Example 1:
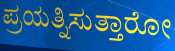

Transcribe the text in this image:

ಪ್ರಯತ್ನಿಸುತ್ತಾರೋ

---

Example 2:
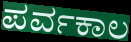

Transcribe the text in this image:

ಪರ್ವಕಾಲ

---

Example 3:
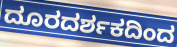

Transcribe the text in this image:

ದೂರದರ್ಶಕದಿಂದ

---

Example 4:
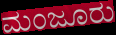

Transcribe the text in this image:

ಮಂಜೂರು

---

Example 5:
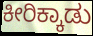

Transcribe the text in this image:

ಕೀರಿಕ್ಕಾಡು